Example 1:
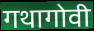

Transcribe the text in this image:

गथागोवी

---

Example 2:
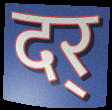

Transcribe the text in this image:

दर्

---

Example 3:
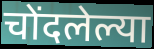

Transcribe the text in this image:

चोंदलेल्या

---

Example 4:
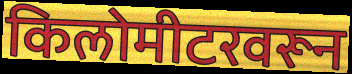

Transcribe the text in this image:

किलोमीटरवरून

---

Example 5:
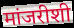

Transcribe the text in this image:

मांजरीशी